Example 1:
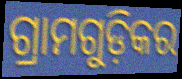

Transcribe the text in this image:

ଗ୍ରାମଗୁଡ଼ିକର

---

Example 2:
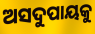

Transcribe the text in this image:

ଅସଦୁପାୟକୁ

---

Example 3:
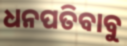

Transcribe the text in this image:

ଧନପତିବାବୁ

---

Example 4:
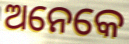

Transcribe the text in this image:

ଅନେକେ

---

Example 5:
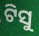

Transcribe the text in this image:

ଟିସୁ